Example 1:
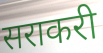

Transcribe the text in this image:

सराकरी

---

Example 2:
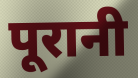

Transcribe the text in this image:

पूरानी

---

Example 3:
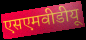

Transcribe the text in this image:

एसएमवीडीयू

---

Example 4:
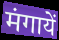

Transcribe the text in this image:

मंगायें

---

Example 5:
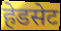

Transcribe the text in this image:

हेडसेट